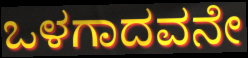
ಒಳಗಾದವನೇ